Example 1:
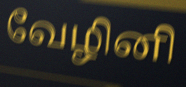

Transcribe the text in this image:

வேழினி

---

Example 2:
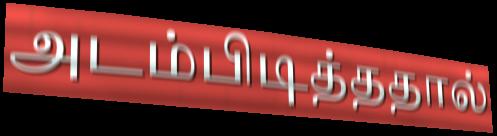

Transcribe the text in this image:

அடம்பிடித்ததால்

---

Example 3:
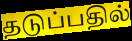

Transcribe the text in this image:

தடுப்பதில்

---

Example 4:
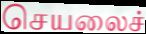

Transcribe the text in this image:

செயலைச்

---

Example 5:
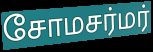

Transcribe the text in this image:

சோமசர்மர்